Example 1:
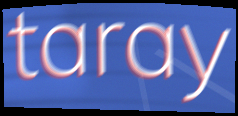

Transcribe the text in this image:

taray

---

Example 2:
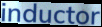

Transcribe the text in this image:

inductor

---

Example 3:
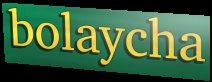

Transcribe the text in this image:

bolaycha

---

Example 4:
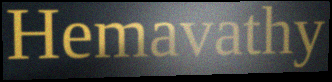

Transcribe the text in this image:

Hemavathy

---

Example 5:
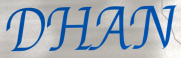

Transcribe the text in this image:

DHAN